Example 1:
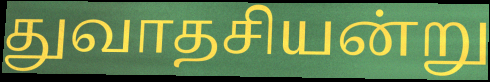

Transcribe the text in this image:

துவாதசியன்று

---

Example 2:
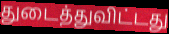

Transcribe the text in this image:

துடைத்துவிட்டது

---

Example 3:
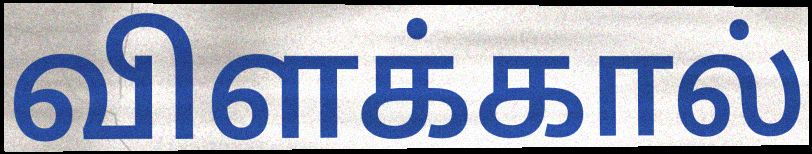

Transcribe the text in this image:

விளக்கால்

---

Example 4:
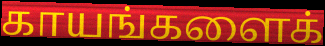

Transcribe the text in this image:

காயங்களைக்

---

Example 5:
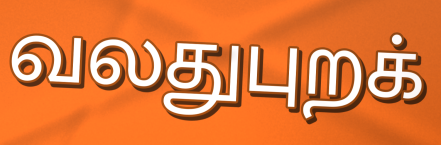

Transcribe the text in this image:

வலதுபுறக்